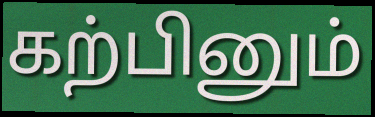
கற்பினும்